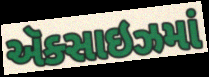
ઍક્સાઇઝમાં